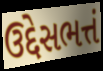
ઉદ્દેસભત્તં